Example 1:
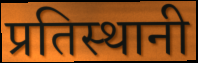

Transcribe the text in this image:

प्रतिस्थानी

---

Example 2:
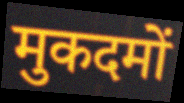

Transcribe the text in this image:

मुकदमों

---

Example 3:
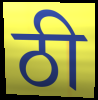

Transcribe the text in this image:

ठी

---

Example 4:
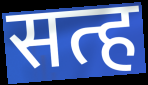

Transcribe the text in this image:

सत्ह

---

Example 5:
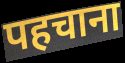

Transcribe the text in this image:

पहचाना